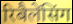
रिबैलेंसिंग